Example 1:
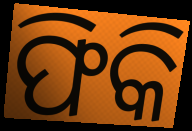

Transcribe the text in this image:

ଫିକି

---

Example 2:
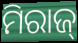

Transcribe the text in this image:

ମିରାଜ୍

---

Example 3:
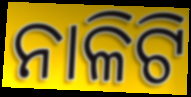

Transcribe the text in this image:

ନାଳିଟି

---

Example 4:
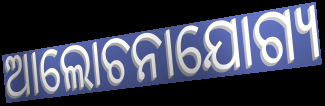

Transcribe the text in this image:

ଆଲୋଚନାଯୋଗ୍ୟ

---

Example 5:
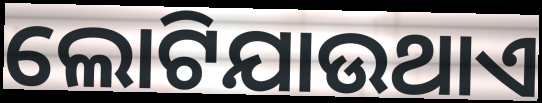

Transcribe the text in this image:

ଲୋଟିଯାଉଥାଏ